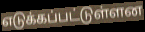
எடுக்கப்பட்டுள்ளன